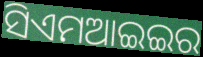
ସିଏମଆଇଇର